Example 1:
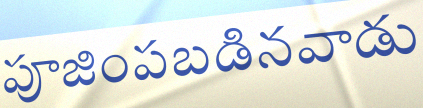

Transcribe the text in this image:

పూజింపబడినవాడు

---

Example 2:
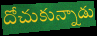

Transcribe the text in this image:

దోచుకున్నాడు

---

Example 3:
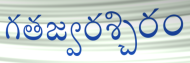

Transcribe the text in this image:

గతజ్వరశ్చిరం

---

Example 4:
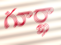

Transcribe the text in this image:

గూర్ఖా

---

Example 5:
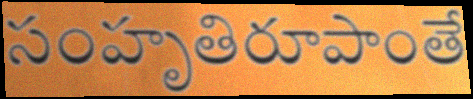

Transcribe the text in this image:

సంహృతిరూపాంతే